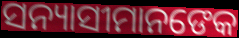
ସନ୍ୟାସୀମାନଙେକ